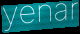
yenar